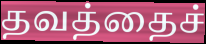
தவத்தைச்